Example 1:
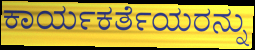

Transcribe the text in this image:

ಕಾರ್ಯಕರ್ತೆಯರನ್ನು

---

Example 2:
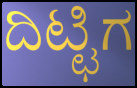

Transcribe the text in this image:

ದಿಟ್ಟಿಗ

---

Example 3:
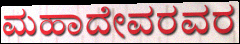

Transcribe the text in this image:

ಮಹಾದೇವರವರ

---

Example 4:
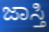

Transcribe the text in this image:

ಜಾಸ್ತಿ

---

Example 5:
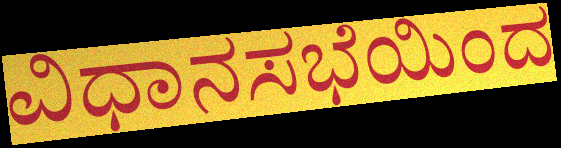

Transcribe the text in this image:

ವಿಧಾನಸಭೆಯಿಂದ